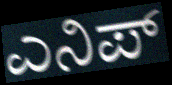
ಎನಿಪ್